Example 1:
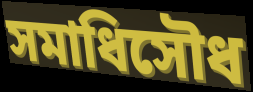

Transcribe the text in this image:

সমাধিসৌধ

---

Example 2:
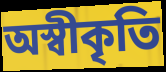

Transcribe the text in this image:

অস্বীকৃতি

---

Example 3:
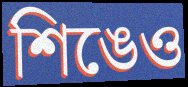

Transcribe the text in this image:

শিঙেও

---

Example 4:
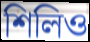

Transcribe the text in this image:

শিলিও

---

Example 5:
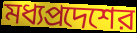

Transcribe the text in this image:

মধ্যপ্রদেশের